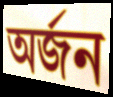
অর্জন